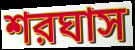
শরঘাস